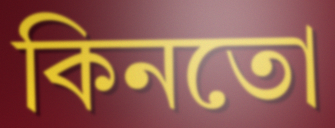
কিনতো